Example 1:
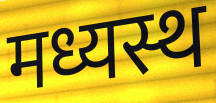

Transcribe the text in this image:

मध्यस्थ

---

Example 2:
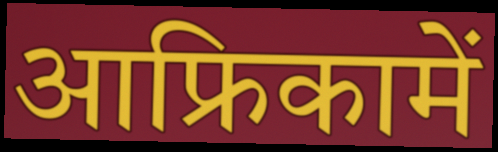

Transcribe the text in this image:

आफ्रिकामें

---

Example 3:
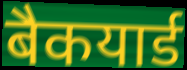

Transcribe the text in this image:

बैकयार्ड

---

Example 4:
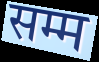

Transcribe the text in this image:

सम्म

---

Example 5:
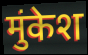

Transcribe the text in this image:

मुंकेश